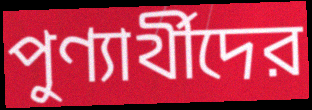
পুণ্যার্থীদের